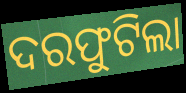
ଦରଫୁଟିଲା